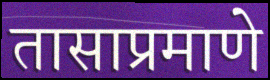
तासाप्रमाणे